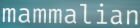
mammalian